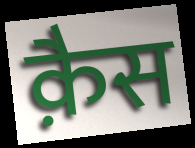
क़ैस